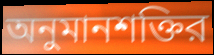
অনুমানশক্তির